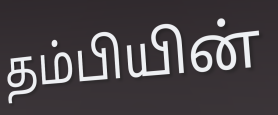
தம்பியின்